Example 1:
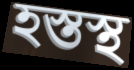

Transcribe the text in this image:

হস্তস্থ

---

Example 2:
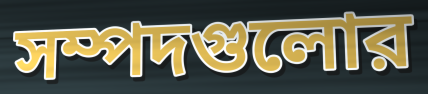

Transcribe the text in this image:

সম্পদগুলোর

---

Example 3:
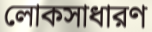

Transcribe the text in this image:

লোকসাধারণ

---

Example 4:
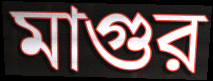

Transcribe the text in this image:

মাগুর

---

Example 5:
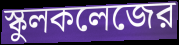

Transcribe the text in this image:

স্কুলকলেজের